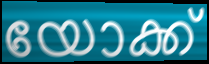
യോക്ക്